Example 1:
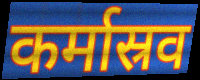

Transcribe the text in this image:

कर्मास्रव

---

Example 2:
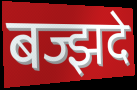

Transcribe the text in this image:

बज्झदे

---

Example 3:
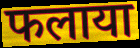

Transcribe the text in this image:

फलाया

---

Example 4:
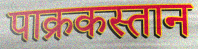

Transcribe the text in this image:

पाक्रकस्तान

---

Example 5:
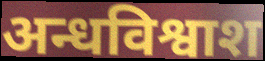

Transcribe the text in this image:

अन्धविश्वाश